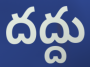
దద్దు